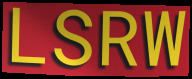
LSRW